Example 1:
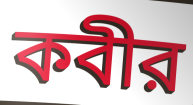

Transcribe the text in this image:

কবীর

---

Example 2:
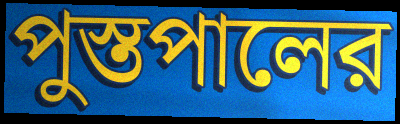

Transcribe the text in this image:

পুস্তপালের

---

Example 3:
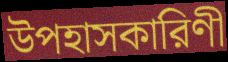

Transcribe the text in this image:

উপহাসকারিণী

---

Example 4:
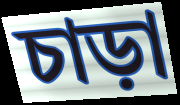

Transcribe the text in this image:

চাড়া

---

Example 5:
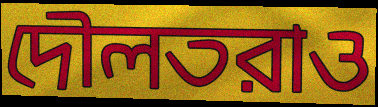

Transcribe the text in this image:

দৌলতরাও